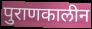
पुराणकालीन